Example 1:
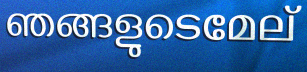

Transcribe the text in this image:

ഞങ്ങളുടെമേല്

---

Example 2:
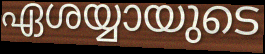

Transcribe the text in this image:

ഏശയ്യായുടെ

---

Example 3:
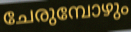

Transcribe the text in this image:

ചേരുമ്പോഴും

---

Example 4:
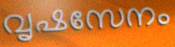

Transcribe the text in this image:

വൃഷസേനം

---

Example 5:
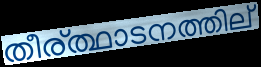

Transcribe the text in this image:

തീര്ത്ഥാടനത്തില്